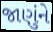
જાણુંને